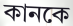
কানকে